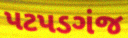
પટપડગંજ